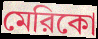
মেরিকো